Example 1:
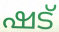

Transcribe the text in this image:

ഷട്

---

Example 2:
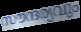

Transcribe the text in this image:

സൗന്ദര്യവും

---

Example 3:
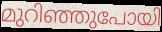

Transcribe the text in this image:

മുറിഞ്ഞുപോയി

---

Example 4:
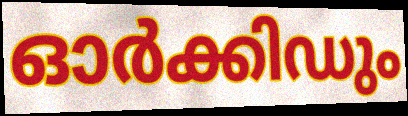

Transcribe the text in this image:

ഓർക്കിഡും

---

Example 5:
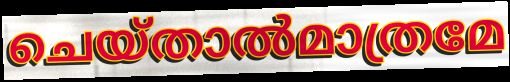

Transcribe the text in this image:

ചെയ്താൽമാത്രമേ